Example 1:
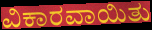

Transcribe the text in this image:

ವಿಕಾರವಾಯಿತು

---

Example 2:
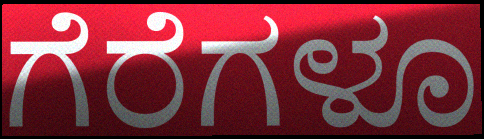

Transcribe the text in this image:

ಗೆರೆಗಳೂ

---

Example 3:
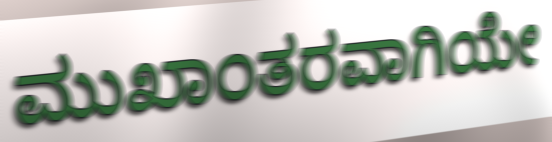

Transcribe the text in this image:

ಮುಖಾಂತರವಾಗಿಯೇ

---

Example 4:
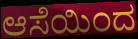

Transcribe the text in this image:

ಆಸೆಯಿಂದ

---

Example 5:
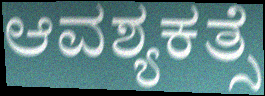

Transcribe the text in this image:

ಆವಶ್ಯಕತ್ಸೆ